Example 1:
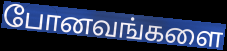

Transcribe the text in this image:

போனவங்களை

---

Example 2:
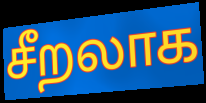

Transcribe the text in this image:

சீறலாக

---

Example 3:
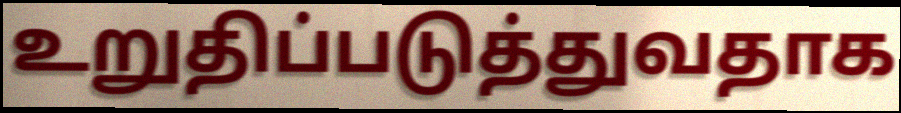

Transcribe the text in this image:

உறுதிப்படுத்துவதாக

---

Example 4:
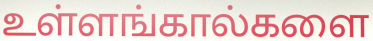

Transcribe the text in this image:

உள்ளங்கால்களை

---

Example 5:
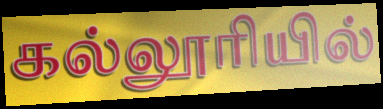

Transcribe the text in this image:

கல்லூரியில்